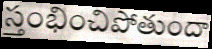
స్తంభించిపోతుందా